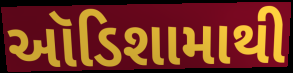
ઑડિશામાથી